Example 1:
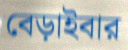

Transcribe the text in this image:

বেড়াইবার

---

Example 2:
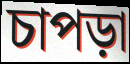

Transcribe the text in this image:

চাপড়া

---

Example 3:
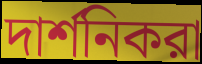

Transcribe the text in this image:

দার্শনিকরা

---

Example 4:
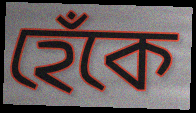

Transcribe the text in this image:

হেঁকে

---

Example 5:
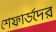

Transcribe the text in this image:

শেফার্ডদের